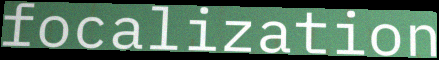
focalization